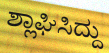
ಶ್ಲಾಘಿಸಿದ್ದು